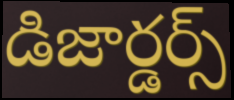
డిజార్డర్స్